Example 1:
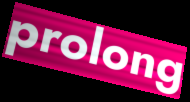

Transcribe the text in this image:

prolong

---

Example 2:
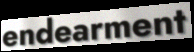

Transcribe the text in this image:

endearment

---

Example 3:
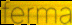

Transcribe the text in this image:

ferma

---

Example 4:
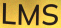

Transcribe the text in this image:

LMS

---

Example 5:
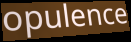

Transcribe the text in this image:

opulence